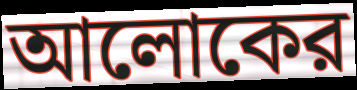
আলোকের